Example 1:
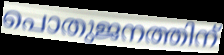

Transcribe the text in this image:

പൊതുജനത്തിന്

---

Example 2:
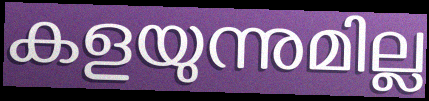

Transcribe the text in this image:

കളയുന്നുമില്ല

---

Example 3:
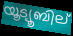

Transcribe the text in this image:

യൂട്യൂബില്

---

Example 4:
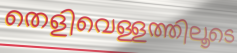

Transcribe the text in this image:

തെളിവെള്ളത്തിലൂടെ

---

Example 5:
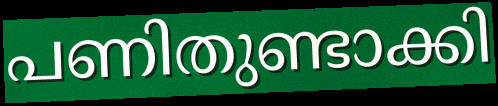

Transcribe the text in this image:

പണിതുണ്ടാക്കി